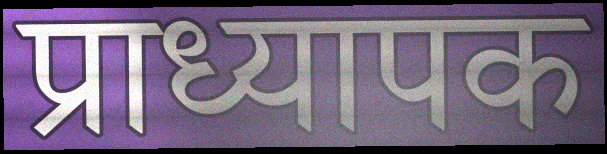
प्राध्यापक